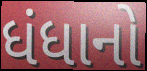
ધંધાનો